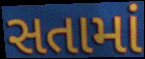
સતામાં